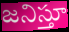
జనిస్తూ